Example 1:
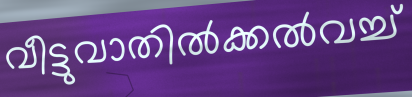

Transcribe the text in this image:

വീട്ടുവാതിൽക്കൽവച്ച്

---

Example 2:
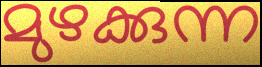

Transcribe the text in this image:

മുഴക്കുന്ന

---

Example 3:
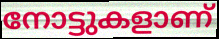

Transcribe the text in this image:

നോട്ടുകളാണ്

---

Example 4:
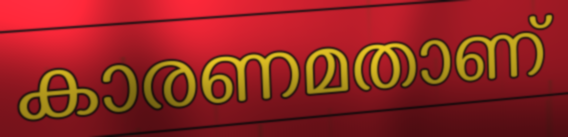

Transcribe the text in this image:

കാരണമതാണ്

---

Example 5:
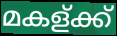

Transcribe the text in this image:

മകള്ക്ക്